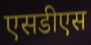
एसडीएस